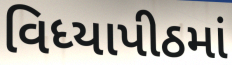
વિધ્યાપીઠમાં